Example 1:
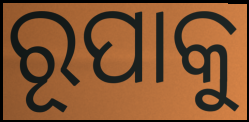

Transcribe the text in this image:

ରୂପାକୁ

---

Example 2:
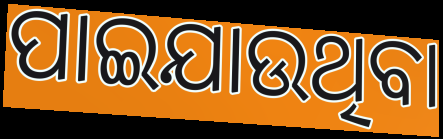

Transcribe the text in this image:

ପାଇଯାଉଥିବା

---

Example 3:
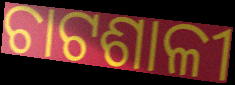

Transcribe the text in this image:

ଚାଟଶାଳୀ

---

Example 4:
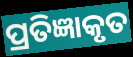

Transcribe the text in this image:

ପ୍ରତିଜ୍ଞାକୃତ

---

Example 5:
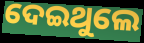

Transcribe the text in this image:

ଦେଇଥୁଲେ